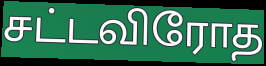
சட்டவிரோத